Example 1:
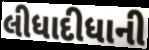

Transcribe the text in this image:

લીધાદીધાની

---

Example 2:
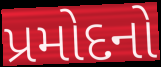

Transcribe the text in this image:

પ્રમોદનો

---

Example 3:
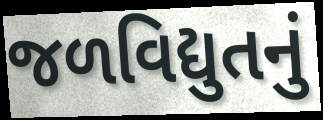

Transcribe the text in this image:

જળવિદ્યુતનું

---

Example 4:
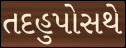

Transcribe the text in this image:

તદહુપોસથે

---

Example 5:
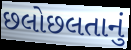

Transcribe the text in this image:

છલોછલતાનું